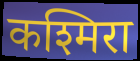
कश्मिरा